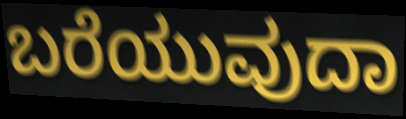
ಬರೆಯುವುದಾ